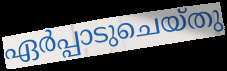
ഏർപ്പാടുചെയ്തു